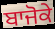
ਬਾਜੋਕੇ